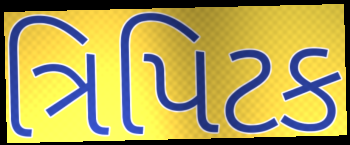
ત્રિપિટક